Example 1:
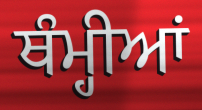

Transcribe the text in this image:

ਥੰਮ੍ਹੀਆਂ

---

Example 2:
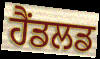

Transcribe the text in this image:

ਹੈਂਡਲਡ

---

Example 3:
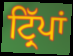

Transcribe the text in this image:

ਟ੍ਰਿੱਪਾਂ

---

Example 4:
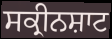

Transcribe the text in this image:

ਸਕ੍ਰੀਨਸ਼ਾਟ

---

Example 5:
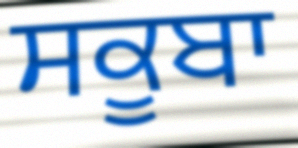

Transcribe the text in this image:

ਸਕੂਬਾ